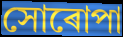
সোৰোপা